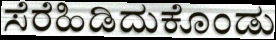
ಸೆರೆಹಿಡಿದುಕೊಂಡು